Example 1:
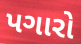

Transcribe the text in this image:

પગારો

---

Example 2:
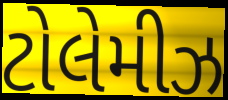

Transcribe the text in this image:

ટોલેમીઝ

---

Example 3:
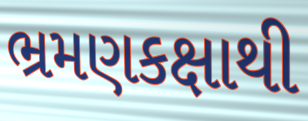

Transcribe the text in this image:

ભ્રમણકક્ષાથી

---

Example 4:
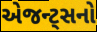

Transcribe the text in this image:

એજન્ટ્સનો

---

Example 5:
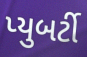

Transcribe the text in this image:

પ્યુબર્ટી